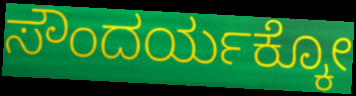
ಸೌಂದರ್ಯಕ್ಕೋ